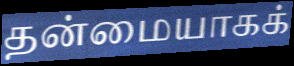
தன்மையாகக்